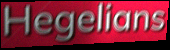
Hegelians